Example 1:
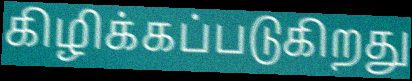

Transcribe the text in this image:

கிழிக்கப்படுகிறது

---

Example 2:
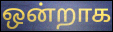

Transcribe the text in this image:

ஒன்றாக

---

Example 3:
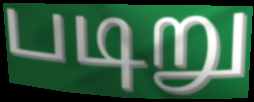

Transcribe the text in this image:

படிறு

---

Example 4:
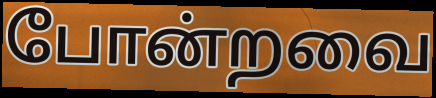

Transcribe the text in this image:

போன்றவை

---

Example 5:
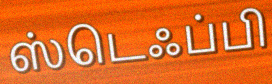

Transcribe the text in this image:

ஸ்டெஃப்பி